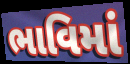
ભાવિમાં